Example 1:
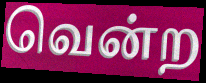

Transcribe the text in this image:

வென்ற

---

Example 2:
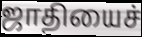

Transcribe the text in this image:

ஜாதியைச்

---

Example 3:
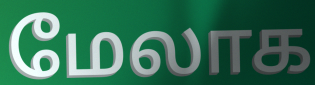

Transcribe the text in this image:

மேலாக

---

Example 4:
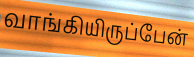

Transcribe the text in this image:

வாங்கியிருப்பேன்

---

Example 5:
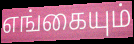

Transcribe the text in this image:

எங்கையும்